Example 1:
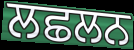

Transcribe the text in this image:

ਲਛਲਨ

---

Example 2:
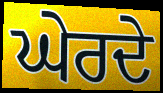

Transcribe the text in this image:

ਘੇਰਦੇ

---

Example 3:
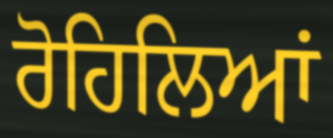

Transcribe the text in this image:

ਰੋਹਿਲਿਆਂ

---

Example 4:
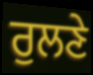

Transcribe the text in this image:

ਰੁਲਣੇ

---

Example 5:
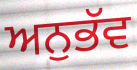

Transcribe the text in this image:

ਅਨੁਭੱਵ